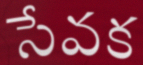
సేవక